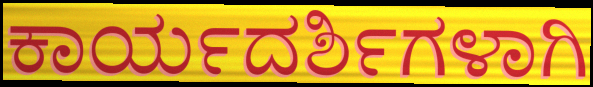
ಕಾರ್ಯದರ್ಶಿಗಳಾಗಿ